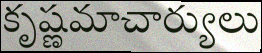
కృష్ణమాచార్యులు